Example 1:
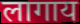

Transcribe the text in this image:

लागाय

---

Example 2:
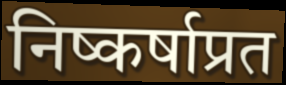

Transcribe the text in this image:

निष्कर्षाप्रत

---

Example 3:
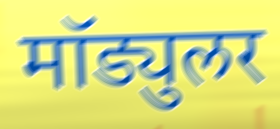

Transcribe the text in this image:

मॉड्युलर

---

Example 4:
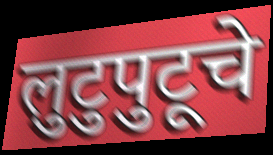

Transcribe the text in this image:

लुटुपुटूचे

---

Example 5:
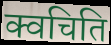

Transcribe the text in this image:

क्वचिति